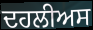
ਦਹਲੀਅਸ